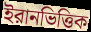
ইরানভিত্তিক